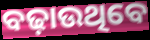
ବଢ଼ାଉଥିବେ